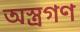
অস্ত্রগণ